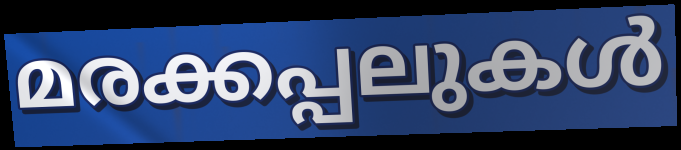
മരക്കപ്പലുകൾ